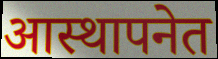
आस्थापनेत